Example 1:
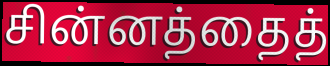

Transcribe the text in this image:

சின்னத்தைத்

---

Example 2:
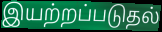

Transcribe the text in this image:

இயற்றப்படுதல்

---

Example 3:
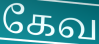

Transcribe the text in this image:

கேவ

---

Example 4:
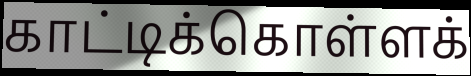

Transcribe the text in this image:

காட்டிக்கொள்ளக்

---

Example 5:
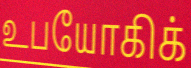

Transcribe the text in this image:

உபயோகிக்